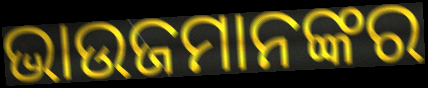
ଭାଉଜମାନଙ୍କର